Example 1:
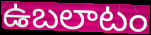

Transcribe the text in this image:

ఉబలాటం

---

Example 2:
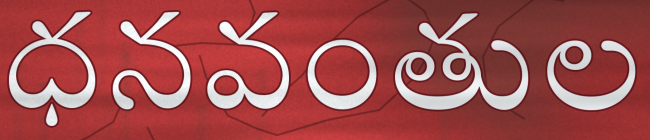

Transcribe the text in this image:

ధనవంతుల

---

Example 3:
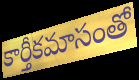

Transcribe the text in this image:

కార్తీకమాసంతో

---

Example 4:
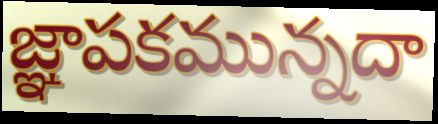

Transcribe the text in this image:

జ్ఞాపకమున్నదా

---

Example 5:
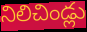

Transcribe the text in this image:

నిలిచిండ్లు